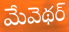
మేవెథర్